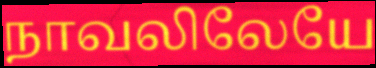
நாவலிலேயே